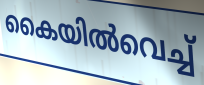
കൈയിൽവെച്ച്